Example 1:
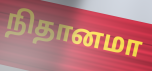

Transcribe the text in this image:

நிதானமா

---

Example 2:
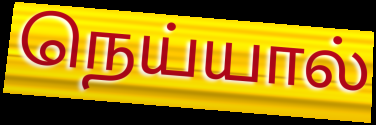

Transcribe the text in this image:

நெய்யால்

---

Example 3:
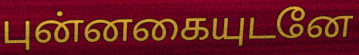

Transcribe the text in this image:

புன்னகையுடனே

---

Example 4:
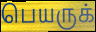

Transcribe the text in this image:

பெயருக்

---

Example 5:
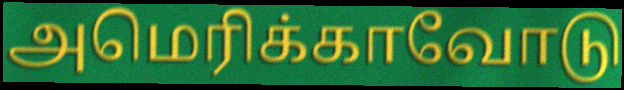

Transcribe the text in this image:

அமெரிக்காவோடு